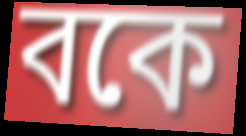
বকে